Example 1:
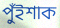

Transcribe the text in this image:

পুঁইশাক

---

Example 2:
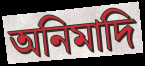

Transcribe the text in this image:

অনিমাদি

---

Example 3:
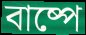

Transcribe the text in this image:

বাষ্পে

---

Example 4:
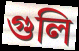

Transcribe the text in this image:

গুলি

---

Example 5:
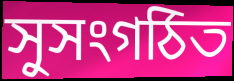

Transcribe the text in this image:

সুসংগঠিত